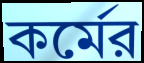
কর্মের